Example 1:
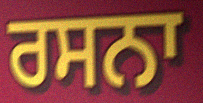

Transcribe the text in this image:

ਰਸਨਾ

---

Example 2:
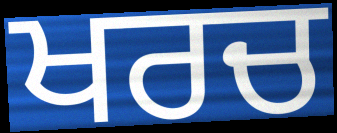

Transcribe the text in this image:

ਖਰਚ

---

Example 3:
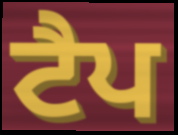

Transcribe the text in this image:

ਟੈਪ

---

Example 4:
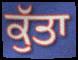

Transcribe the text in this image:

ਕੁੱਤਾ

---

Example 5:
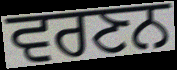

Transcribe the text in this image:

ਵਰਣਨ